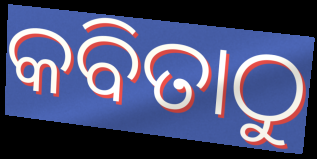
କବିତାଠୁ